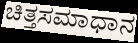
ಚಿತ್ತಸಮಾಧಾನ